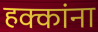
हक्कांना